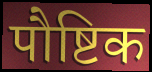
पौष्टिक